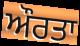
ਔਰਤਾ